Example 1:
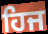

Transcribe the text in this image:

ਹਿਜ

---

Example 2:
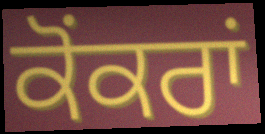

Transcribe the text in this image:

ਕੋਂਕਰਾਂ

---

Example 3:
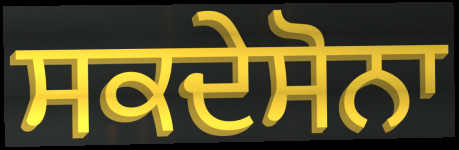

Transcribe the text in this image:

ਸਕਦੇਸੋਨਾ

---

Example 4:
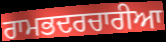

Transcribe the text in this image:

ਰਾਮਭਦਰਚਾਰੀਆ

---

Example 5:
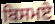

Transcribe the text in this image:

ਬਿਸਮਏ